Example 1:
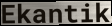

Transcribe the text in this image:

Ekantik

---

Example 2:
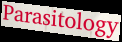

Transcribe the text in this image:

Parasitology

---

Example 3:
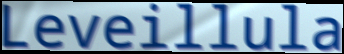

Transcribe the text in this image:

Leveillula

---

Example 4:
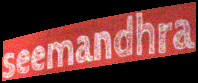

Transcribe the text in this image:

seemandhra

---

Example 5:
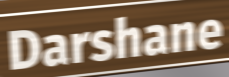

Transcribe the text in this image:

Darshane